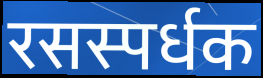
रसस्पर्धक